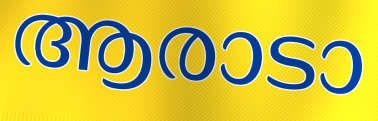
ആരാടാ